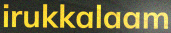
irukkalaam